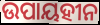
ଉପାୟହୀନ